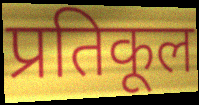
प्रतिकूल